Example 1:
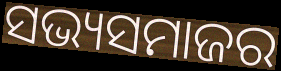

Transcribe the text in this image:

ସଭ୍ୟସମାଜର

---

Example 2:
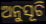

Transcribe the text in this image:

ଅନୁସୂଚି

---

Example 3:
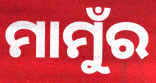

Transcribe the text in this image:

ମାମୁଁର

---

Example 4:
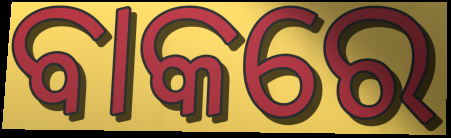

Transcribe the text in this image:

ବାକରେ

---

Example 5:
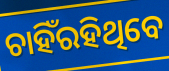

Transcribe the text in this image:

ଚାହିଁରହିଥିବେ